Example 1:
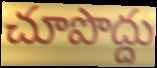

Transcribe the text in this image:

చూపొద్దు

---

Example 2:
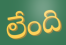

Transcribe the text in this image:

లేంది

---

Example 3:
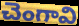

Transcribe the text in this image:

చెంగావి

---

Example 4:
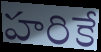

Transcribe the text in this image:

హరికే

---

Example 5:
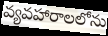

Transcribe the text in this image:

వ్యవహారాలలోను